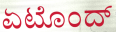
ಏಟೊಂದ್